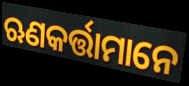
ଋଣକର୍ତ୍ତାମାନେ